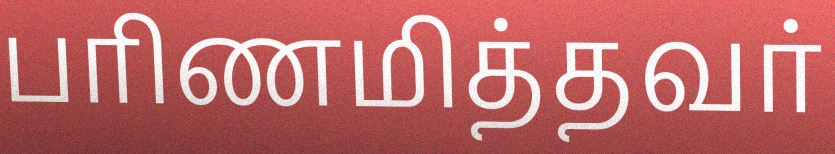
பரிணமித்தவர்